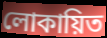
লোকায়িত